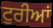
ਟੁਰੀਆਂ